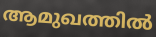
ആമുഖത്തിൽ